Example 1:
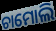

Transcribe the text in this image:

ଚାମୋଲି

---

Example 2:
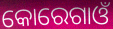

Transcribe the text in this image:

କୋରେଗାଓଁ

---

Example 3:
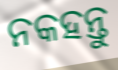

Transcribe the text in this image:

ନକହନ୍ତୁ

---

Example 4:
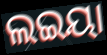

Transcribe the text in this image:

ଲଇୟା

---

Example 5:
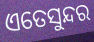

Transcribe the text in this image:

ଏତେସୁନ୍ଦର